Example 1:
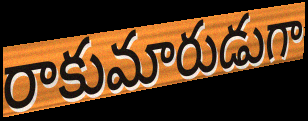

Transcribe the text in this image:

రాకుమారుడుగా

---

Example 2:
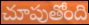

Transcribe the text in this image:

చూపుతోంది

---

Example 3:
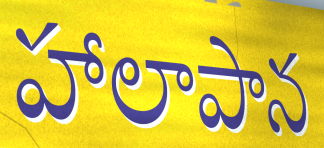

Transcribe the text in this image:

హాలాపాన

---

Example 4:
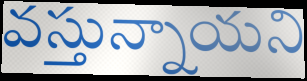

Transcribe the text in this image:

వస్తున్నాయని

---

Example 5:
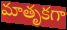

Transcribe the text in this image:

మాతృకగా